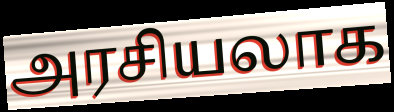
அரசியலாக